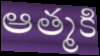
ఆత్మకి